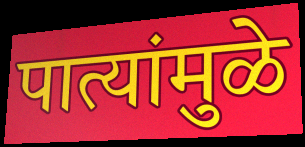
पात्यांमुळे